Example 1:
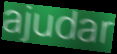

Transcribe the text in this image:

ajudar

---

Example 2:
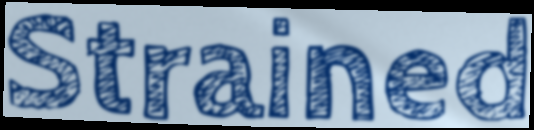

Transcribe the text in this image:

Strained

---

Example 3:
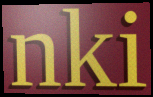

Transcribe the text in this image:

nki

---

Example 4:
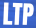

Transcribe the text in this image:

LTP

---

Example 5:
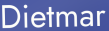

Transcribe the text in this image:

Dietmar